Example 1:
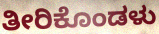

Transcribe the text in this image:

ತೀರಿಕೊಂಡಳು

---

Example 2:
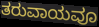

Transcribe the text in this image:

ತರುವಾಯವೂ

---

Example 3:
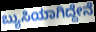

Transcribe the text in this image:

ಬ್ಯುಸಿಯಾಗಿದ್ದೇನೆ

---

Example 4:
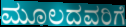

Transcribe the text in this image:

ಮೂಲದವರಿಗೆ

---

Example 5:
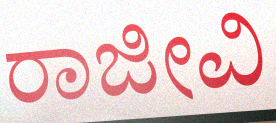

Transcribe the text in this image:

ರಾಜೀವಿ